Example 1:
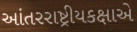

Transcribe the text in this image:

આંતરરાષ્ટ્રીયકક્ષાએ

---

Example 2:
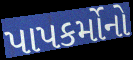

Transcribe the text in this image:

પાપકર્મોનો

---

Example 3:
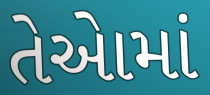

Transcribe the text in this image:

તેએામાં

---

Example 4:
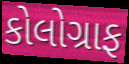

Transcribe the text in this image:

કોલોગ્રાફ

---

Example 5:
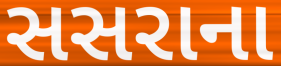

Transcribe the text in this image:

સસરાના